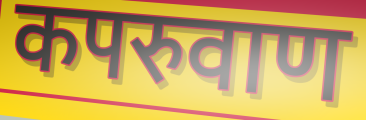
कपरुवाण